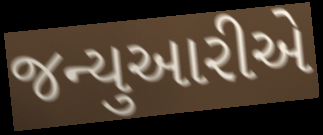
જન્યુઆરીએ